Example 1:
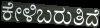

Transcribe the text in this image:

ಕೇಳಿಬರುತಿದೆ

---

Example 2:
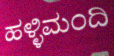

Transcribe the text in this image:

ಹಳ್ಳಿಮಂದಿ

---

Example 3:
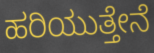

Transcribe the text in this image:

ಹರಿಯುತ್ತೇನೆ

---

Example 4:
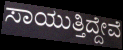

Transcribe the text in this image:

ಸಾಯುತ್ತಿದ್ದೇವೆ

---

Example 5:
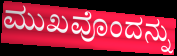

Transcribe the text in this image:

ಮುಖವೊಂದನ್ನು